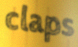
claps